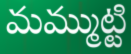
మమ్ముట్టి